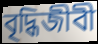
বৃদ্ধিজীবী